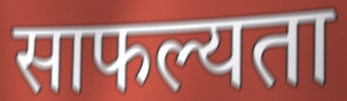
साफल्यता